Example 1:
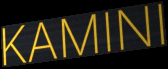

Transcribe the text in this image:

KAMINI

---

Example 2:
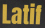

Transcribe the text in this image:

Latif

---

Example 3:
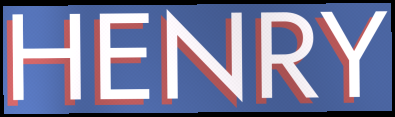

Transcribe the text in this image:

HENRY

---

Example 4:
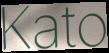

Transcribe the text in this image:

Kato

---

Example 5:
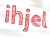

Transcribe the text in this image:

ihjel